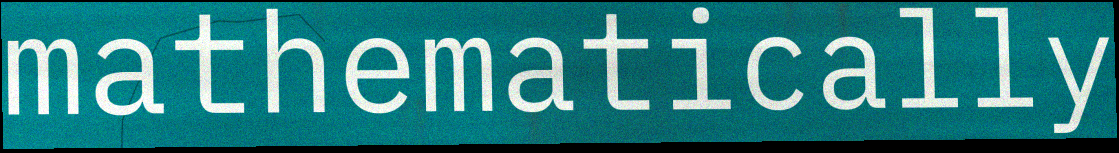
mathematically